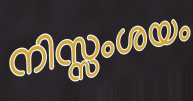
നിസ്സംശയം